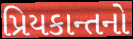
પ્રિયકાન્તનો